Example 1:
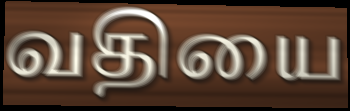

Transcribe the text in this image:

வதியை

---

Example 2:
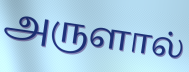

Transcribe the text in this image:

அருளால்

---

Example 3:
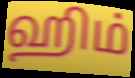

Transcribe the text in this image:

ஹிம்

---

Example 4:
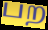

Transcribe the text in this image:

பற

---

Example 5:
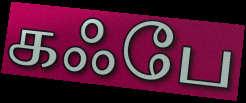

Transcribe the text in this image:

கஃபே